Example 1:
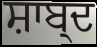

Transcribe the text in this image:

ਸ਼ਾਬ੍ਦ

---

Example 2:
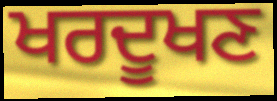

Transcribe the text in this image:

ਖਰਦੂਖਣ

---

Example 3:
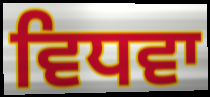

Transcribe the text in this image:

ਵਿਧਵਾ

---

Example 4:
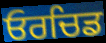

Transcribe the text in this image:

ਓਰਚਿਡ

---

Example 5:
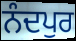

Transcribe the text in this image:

ਨੰਦਪੁਰ